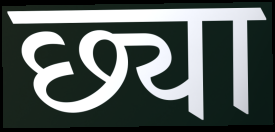
छ्या